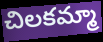
చిలకమ్మా